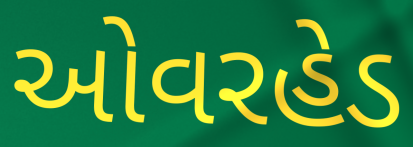
ઓવરહેડ